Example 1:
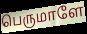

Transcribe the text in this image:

பெருமாளே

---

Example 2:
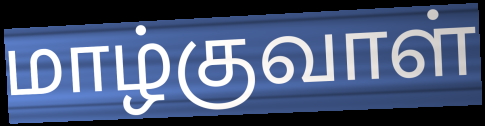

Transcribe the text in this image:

மாழ்குவாள்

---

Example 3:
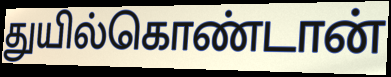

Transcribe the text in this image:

துயில்கொண்டான்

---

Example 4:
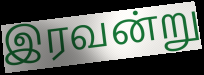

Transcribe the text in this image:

இரவன்று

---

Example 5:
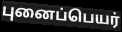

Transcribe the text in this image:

புனைப்பெயர்